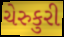
ચેરુકુરી